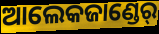
ଆଲେକଜାଣ୍ଡେର୍